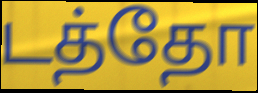
டத்தோ